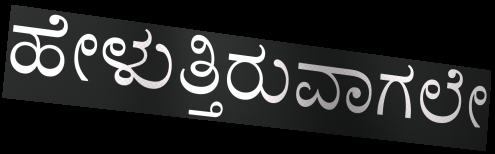
ಹೇಳುತ್ತಿರುವಾಗಲೇ